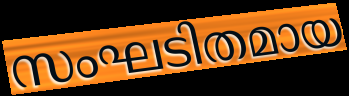
സംഘടിതമായ